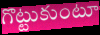
గొట్టుకుంటూ